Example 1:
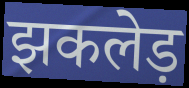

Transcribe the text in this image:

झकलेड़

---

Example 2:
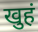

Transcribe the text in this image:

खुहं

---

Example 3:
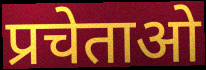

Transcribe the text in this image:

प्रचेताओ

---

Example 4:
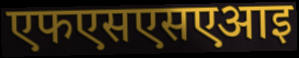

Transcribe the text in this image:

एफएसएसएआइ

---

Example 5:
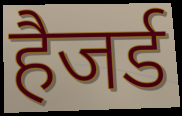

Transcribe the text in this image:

हैजर्ड